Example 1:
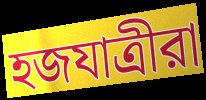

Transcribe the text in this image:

হজযাত্রীরা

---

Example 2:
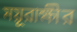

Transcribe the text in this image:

ময়ূরাক্ষীর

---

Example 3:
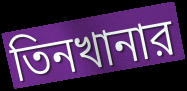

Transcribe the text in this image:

তিনখানার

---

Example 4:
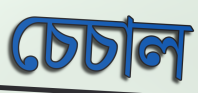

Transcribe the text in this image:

চেচাল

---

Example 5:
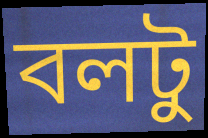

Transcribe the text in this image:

বলটু